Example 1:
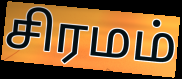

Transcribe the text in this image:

சிரமம்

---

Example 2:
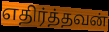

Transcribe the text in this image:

எதிர்த்தவன்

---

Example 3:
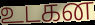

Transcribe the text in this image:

உடகன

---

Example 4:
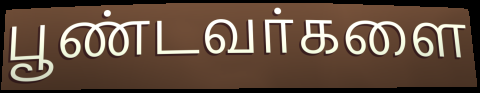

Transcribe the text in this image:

பூண்டவர்களை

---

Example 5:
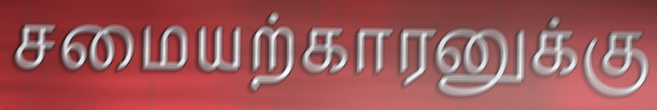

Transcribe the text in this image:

சமையற்காரனுக்கு